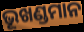
ଭୂଖଣ୍ଡମାନ